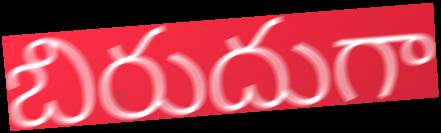
బిరుదుగా